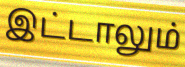
இட்டாலும்